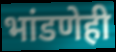
भांडणेही